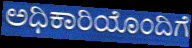
ಅಧಿಕಾರಿಯೊಂದಿಗೆ